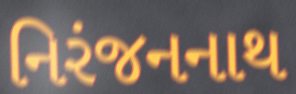
નિરંજનનાથ